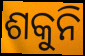
ଶକୁନି